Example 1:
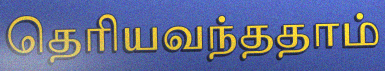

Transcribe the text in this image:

தெரியவந்ததாம்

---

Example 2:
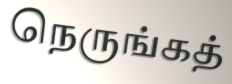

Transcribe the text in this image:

நெருங்கத்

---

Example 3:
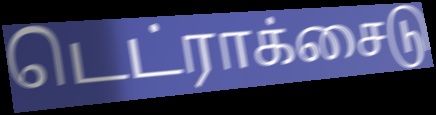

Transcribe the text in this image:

டெட்ராக்சைடு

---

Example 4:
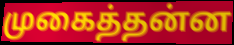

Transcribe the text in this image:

முகைத்தன்ன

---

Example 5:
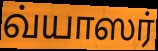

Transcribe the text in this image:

வ்யாஸர்